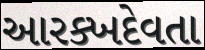
આરક્ખદેવતા